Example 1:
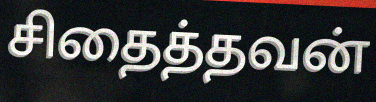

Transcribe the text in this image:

சிதைத்தவன்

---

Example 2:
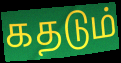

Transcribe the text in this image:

கதடும்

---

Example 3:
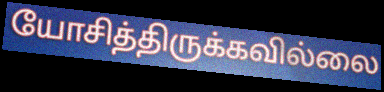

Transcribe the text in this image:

யோசித்திருக்கவில்லை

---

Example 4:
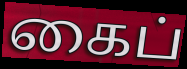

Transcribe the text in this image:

கைப்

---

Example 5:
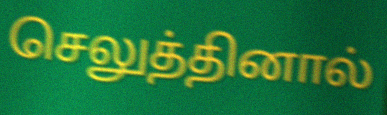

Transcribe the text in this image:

செலுத்தினால்